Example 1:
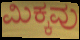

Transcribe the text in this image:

ಮಿಕ್ಕವು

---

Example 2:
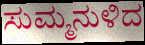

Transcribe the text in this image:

ಸುಮ್ಮನುಳಿದ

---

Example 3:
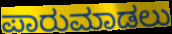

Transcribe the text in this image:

ಪಾರುಮಾಡಲು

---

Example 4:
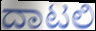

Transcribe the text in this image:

ದಾಟಲಿ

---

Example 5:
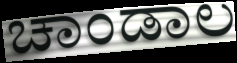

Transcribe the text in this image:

ಚಾಂಡಾಲ